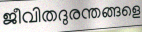
ജീവിതദുരന്തങ്ങളെ